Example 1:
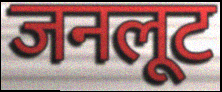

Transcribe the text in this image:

जनलूट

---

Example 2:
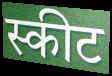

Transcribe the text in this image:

स्‍कीट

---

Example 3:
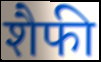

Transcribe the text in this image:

शैफी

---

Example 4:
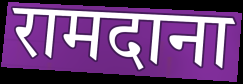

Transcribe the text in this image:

रामदाना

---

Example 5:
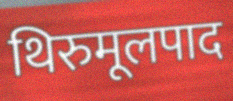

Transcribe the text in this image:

थिरुमूलपाद